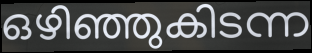
ഒഴിഞ്ഞുകിടന്ന